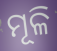
ମୂଳି